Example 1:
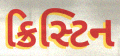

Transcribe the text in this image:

ક્રિસ્ટિન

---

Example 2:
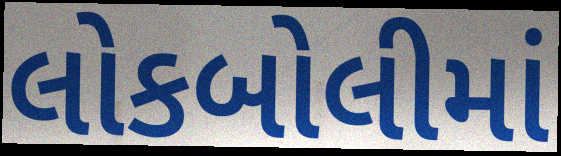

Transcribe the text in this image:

લોકબોલીમાં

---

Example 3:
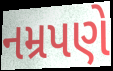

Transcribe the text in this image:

નમ્રપણે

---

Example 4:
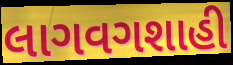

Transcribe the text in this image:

લાગવગશાહી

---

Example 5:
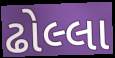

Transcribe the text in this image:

ઢોલ્લા